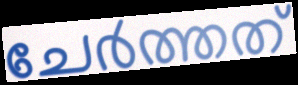
ചേർത്തത്